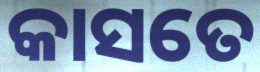
କାସତେ